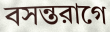
বসন্তরাগে